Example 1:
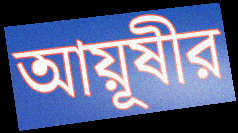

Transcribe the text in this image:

আয়ূষীর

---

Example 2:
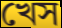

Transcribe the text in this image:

খেস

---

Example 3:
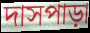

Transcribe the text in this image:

দাসপাড়া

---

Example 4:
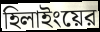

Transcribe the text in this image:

হিলাইংয়ের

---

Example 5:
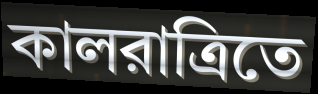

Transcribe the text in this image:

কালরাত্রিতে